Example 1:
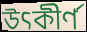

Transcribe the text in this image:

উৎকীর্ণ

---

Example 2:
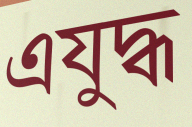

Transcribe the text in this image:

এযুদ্ধ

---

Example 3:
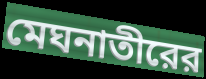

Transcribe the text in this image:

মেঘনাতীরের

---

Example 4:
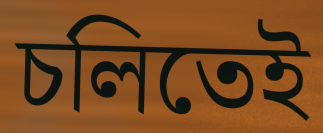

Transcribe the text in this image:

চলিতেই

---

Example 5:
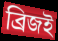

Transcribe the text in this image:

ব্রিজই